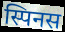
स्पिनस